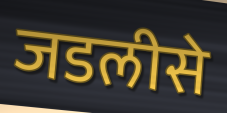
जडलीसे